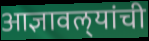
आज्ञावल्यांची